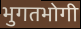
भुगतभोगी